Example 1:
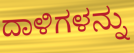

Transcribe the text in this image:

ದಾಳಿಗಳನ್ನು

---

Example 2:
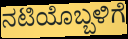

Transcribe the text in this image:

ನಟಿಯೊಬ್ಬಳಿಗೆ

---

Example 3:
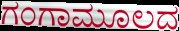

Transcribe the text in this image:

ಗಂಗಾಮೂಲದ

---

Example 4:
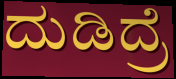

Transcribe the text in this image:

ದುಡಿದ್ರೆ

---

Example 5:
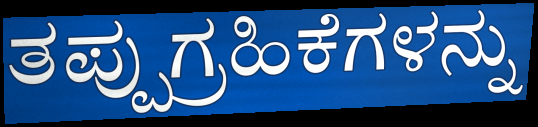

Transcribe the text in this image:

ತಪ್ಪುಗ್ರಹಿಕೆಗಳನ್ನು